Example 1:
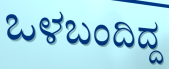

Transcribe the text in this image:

ಒಳಬಂದಿದ್ದ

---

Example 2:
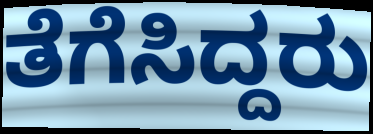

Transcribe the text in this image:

ತೆಗೆಸಿದ್ದರು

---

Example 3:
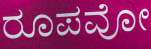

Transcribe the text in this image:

ರೂಪವೋ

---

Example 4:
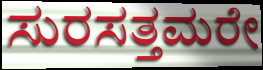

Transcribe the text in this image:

ಸುರಸತ್ತಮರೇ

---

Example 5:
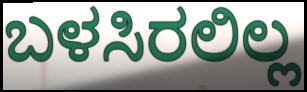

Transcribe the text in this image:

ಬಳಸಿರಲಿಲ್ಲ